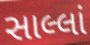
સાલ્લાં